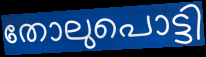
തോലുപൊട്ടി